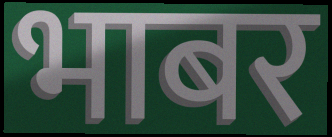
भाबर